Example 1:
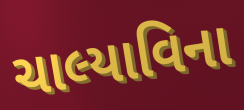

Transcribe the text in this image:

ચાલ્યાવિના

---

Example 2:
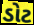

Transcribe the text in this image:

ડોટ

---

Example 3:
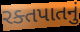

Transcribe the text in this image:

રક્તપાતનું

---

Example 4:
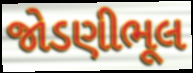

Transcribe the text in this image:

જોડણીભૂલ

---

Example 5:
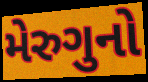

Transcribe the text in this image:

મેરુગુનો